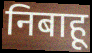
निबाहू